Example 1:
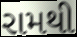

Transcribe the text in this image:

રામથી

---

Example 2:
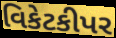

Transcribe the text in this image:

વિકેટકીપર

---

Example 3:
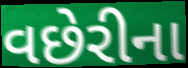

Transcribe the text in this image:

વછેરીના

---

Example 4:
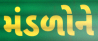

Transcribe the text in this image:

મંડળોને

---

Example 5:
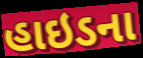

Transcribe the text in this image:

હાઇડના